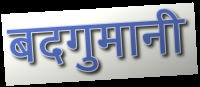
बदगुमानी